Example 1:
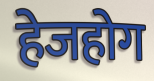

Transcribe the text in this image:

हेजहोग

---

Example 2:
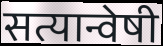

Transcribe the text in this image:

सत्यान्वेषी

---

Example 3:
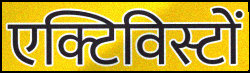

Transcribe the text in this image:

एक्टिविस्टों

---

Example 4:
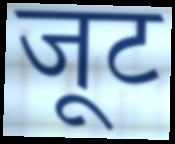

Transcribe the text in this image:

जूट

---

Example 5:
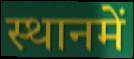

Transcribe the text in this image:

स्थानमें